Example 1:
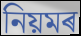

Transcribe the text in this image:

নিয়মৰ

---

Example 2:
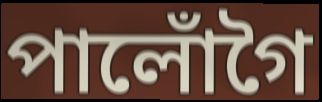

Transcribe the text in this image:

পালোঁগৈ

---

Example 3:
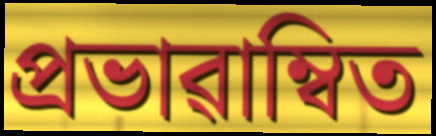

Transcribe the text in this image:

প্ৰভাৱাম্বিত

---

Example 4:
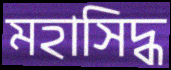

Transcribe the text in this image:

মহাসিদ্ধ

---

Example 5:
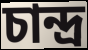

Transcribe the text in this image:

চান্দ্ৰ